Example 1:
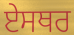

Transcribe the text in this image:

ਏਸਥਰ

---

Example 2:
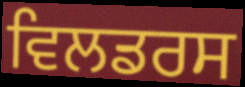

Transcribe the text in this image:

ਵਿਲਡਰਸ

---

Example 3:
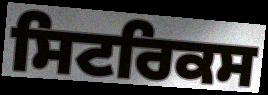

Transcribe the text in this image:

ਸਿਟਰਿਕਸ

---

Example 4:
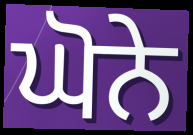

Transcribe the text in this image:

ਘੋਨੇ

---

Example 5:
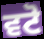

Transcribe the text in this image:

ਵਟੋ